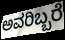
ಅವರಿಬ್ಬರೆ